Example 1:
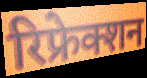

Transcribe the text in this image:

रिफ्रेक्शन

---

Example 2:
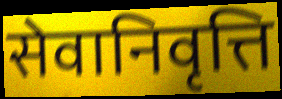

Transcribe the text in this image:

सेवानिवृत्ति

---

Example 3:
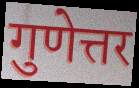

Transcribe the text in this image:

गुणेत्तर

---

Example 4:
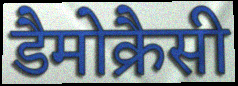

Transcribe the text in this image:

डैमोक्रैसी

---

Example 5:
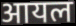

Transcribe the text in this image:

आयल